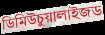
ডিমিউচুয়ালাইজড